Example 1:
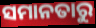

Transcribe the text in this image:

ସମାନତାରୁ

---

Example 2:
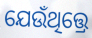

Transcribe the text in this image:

ଯେଉଁଥିତ୍ତ୍ରେ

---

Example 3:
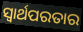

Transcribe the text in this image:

ସ୍ଵାର୍ଥପରତାର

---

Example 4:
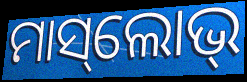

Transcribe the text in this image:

ମାସ୍‌ଲୋଭ୍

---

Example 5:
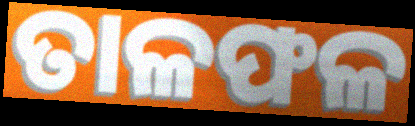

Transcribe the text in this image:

ତାଳଫଳ